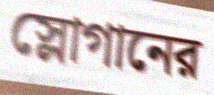
স্লোগানের